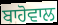
ਬਾਹੋਵਾਲ